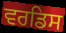
ਵਰਡਿਸ